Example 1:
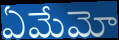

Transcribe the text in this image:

ఏమేమో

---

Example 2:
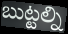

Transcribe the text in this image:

బుట్టల్ని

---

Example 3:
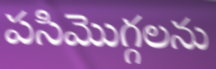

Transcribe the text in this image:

పసిమొగ్గలను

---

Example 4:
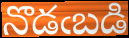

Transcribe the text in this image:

నొడఁబడి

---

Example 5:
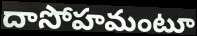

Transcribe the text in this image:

దాసోహమంటూ